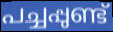
പച്ചപ്പുണ്ട്